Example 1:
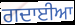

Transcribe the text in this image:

ਗਦਾਈਆ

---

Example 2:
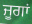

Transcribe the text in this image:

ਜੂਗਾਂ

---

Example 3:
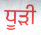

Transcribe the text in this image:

ਧੂੜੀ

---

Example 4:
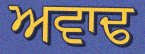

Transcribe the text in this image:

ਅਵਾਢ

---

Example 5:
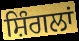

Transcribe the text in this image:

ਸ਼ਿੰਗਲਾਂ